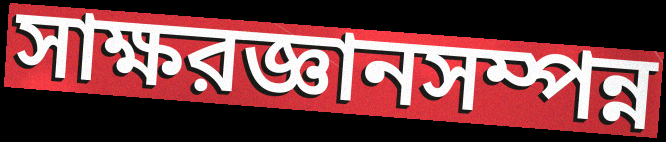
সাক্ষরজ্ঞানসম্পন্ন